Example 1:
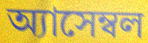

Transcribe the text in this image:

অ্যাসেম্বল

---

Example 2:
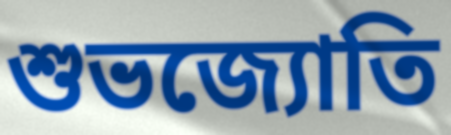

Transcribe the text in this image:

শুভজ্যোতি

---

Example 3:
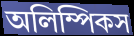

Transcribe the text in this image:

অলিম্পিকস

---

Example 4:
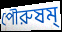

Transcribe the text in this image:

পৌরুষম্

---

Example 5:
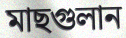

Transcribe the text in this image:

মাছগুলান